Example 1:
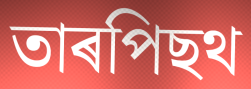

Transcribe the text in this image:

তাৰপিছথ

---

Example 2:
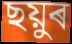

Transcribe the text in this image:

ছয়ুৰ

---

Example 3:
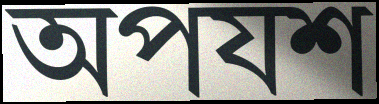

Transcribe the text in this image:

অপযশ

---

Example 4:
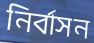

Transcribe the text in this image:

নিৰ্বাসন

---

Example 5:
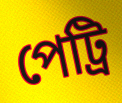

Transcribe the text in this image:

পেট্ৰি